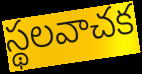
స్థలవాచక